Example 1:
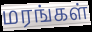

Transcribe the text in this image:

மரங்கள்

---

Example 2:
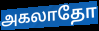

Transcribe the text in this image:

அகலாதோ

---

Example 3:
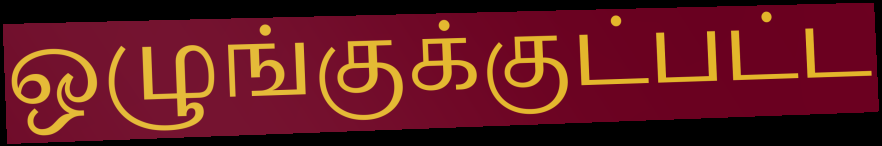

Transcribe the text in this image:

ஒழுங்குக்குட்பட்ட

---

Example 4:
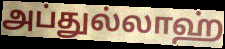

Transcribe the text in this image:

அப்துல்லாஹ்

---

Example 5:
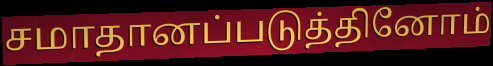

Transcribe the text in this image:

சமாதானப்படுத்தினோம்